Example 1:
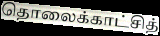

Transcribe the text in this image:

தொலைக்காட்சித்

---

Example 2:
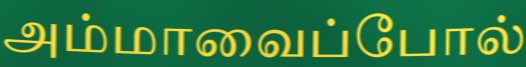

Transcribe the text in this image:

அம்மாவைப்போல்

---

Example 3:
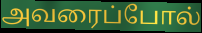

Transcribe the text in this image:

அவரைப்போல்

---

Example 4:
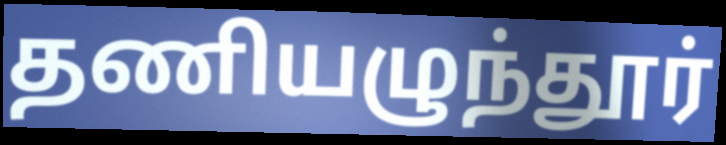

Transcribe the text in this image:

தணியழுந்தூர்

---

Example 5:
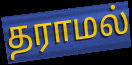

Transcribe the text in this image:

தராமல்